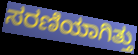
ಸರಣಿಯಾಗಿತ್ತು